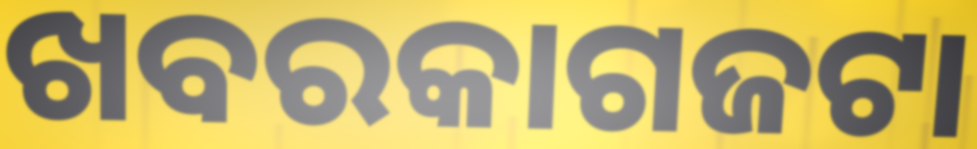
ଖବରକାଗଜଟା